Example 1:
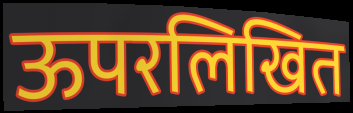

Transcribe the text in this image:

ऊपरलिखित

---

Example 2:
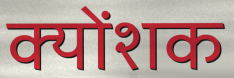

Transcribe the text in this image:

क्योंशक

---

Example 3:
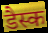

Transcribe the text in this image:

डैस्क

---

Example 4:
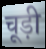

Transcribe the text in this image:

चूड़ी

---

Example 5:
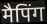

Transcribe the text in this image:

मैपिंग